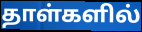
தாள்களில்